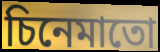
চিনেমাতো